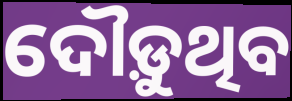
ଦୌଡ଼ୁଥିବ